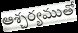
ఆశ్చర్యముతో